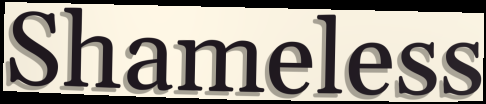
Shameless